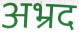
अभ्रद